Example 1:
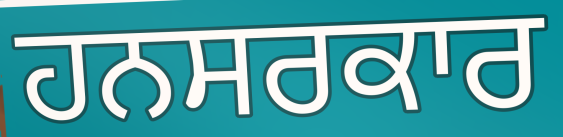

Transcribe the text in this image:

ਹਨਸਰਕਾਰ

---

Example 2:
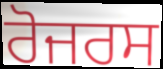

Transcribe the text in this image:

ਰੋਜਰਸ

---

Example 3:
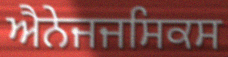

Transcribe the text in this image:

ਐਨੇਜਜਸਿਕਸ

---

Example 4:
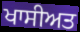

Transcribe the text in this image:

ਖਾਸੀਅਤ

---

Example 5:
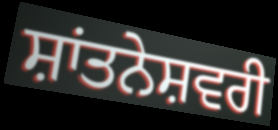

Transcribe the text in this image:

ਸ਼ਾਂਤਨੇਸ਼ਵਰੀ